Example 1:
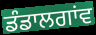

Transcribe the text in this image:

ਡੰਡਾਲਗਾਂਵ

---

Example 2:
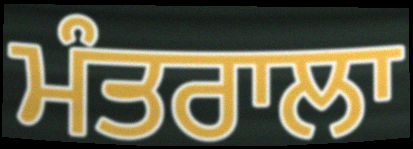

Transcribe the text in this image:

ਮੰਤਰਾਲਾ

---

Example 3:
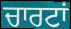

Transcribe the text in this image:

ਚਾਰਟਾਂ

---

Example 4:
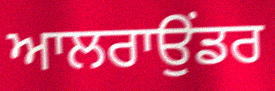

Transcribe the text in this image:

ਆਲਰਾਉਂਡਰ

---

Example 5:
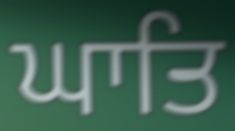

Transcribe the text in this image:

ਘਾਤਿ